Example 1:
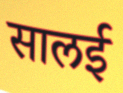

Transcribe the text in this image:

सालई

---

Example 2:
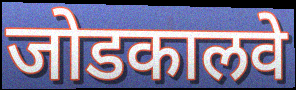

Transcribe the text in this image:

जोडकालवे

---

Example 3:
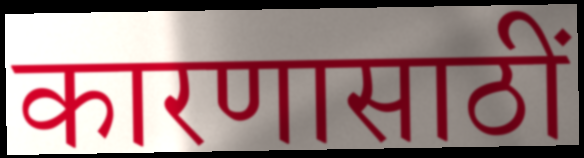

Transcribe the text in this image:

कारणासाठीं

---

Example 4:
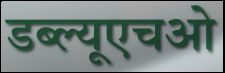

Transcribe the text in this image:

डब्ल्यूएचओ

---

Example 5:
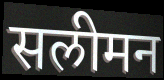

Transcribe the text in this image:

सलीमन